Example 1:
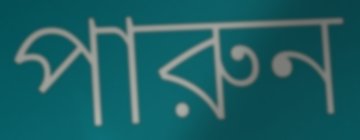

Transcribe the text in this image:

পারুন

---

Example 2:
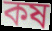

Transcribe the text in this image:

কষ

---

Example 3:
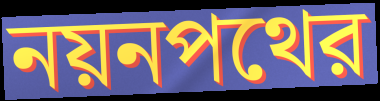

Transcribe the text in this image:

নয়নপথের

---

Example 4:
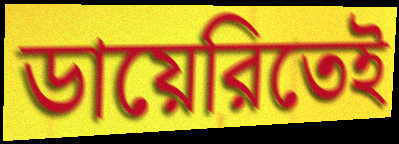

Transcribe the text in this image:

ডায়েরিতেই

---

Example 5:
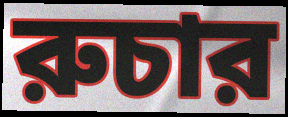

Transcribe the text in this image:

রুচার